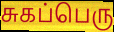
சுகப்பெரு